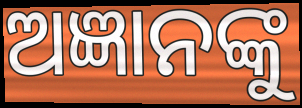
ଅଜ୍ଞାନଙ୍କୁ